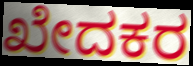
ಖೇದಕರ